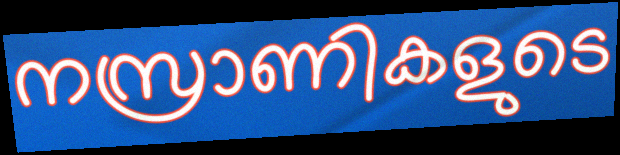
നസ്രാണികളുടെ